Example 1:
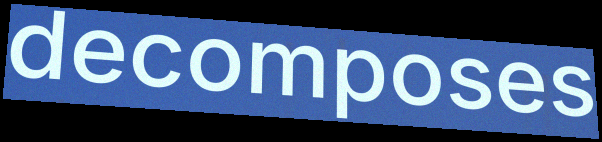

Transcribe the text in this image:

decomposes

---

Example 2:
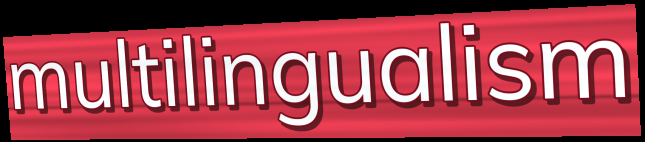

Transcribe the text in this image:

multilingualism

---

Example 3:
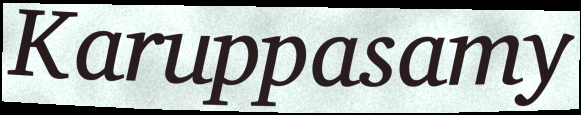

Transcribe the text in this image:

Karuppasamy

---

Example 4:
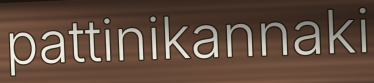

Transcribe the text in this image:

pattinikannaki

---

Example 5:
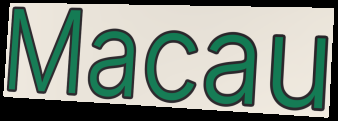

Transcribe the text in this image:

Macau